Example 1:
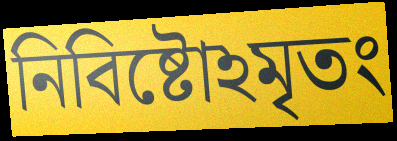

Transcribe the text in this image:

নিবিষ্টোঽমৃতং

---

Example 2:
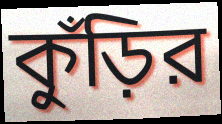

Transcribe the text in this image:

কুঁড়ির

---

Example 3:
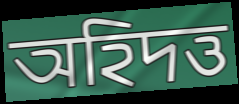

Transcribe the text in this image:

অহিদত্ত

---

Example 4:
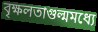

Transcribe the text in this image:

বৃক্ষলতাগুল্মমধ্যে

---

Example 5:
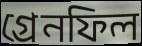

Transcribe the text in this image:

গ্রেনফিল